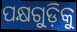
ପକ୍ଷଗୁଡ଼ିକୁ